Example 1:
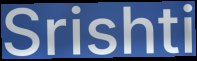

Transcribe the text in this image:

Srishti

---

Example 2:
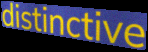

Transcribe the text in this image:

distinctive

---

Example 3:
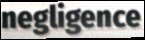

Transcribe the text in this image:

negligence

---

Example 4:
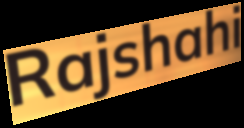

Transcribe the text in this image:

Rajshahi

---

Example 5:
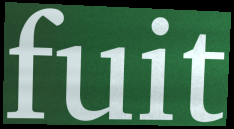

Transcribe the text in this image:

fuit